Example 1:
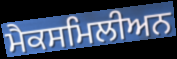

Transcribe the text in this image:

ਮੈਕਸਮਿਲੀਅਨ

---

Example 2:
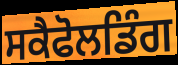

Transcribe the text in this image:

ਸਕੈਫੋਲਡਿੰਗ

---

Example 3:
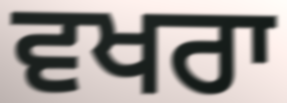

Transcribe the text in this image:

ਵਖਰਾ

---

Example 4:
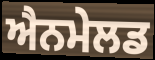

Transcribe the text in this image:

ਐਨਮੇਲਡ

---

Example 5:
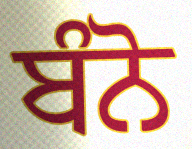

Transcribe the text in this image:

ਬੰਨੋ